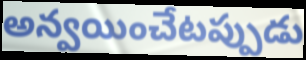
అన్వయించేటప్పుడు